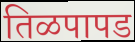
तिळपापड